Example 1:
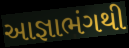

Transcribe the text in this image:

આજ્ઞાભંગથી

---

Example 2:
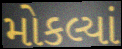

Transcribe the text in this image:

મોકલ્યાં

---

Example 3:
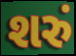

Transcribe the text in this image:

શરું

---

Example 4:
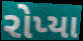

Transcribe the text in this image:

રોપ્યા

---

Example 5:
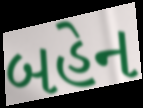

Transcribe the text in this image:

બહેન